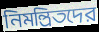
নিমন্ত্রিতদের